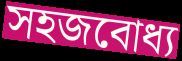
সহজবোধ্য